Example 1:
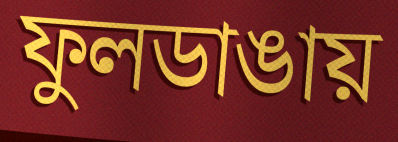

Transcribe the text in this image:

ফুলডাঙায়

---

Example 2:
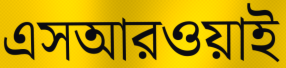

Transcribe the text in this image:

এসআরওয়াই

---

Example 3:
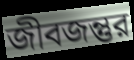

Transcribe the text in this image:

জীবজন্তুর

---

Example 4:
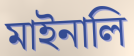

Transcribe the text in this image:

মাইনালি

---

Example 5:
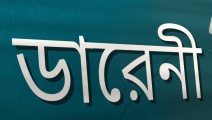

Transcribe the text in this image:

ডারেনী